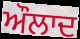
ਔਲਾਦ